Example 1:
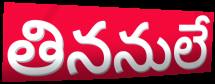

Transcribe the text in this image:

తిననులే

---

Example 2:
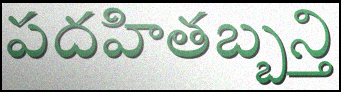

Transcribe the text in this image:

పదహితబ్బన్తి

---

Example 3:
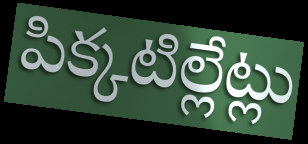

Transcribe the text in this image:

పిక్కటిల్లేట్లు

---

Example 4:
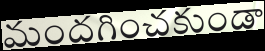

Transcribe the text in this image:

మందగించకుండా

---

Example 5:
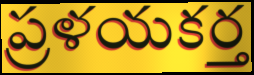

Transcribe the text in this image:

ప్రళయకర్త